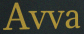
Avva